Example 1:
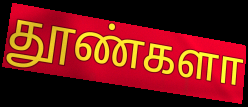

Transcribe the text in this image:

தூண்களா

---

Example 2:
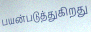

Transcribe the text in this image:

பயன்படுத்துகிறது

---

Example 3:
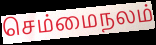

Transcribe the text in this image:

செம்மைநலம்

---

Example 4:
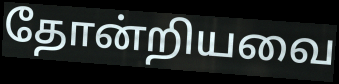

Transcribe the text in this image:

தோன்றியவை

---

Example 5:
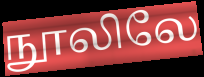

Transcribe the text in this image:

நூலிலே